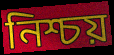
নিশ্চয়